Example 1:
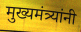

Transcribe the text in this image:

मुख्यमंत्र्यांनी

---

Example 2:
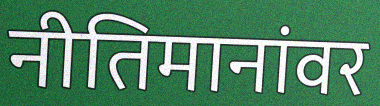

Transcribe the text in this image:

नीतिमानांवर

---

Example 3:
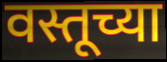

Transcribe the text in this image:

वस्तूच्या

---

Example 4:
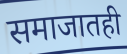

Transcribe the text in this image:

समाजातही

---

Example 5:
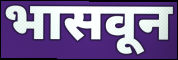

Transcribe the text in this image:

भासवून